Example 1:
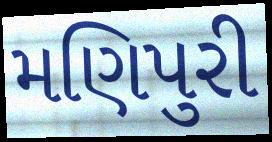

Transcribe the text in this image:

મણિપુરી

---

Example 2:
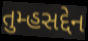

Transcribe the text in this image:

તુમ્હસદ્દેન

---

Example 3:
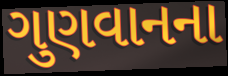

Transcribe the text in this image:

ગુણવાનના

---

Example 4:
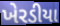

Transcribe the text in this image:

ખેરડીયા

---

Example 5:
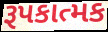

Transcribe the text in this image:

રૂપકાત્મક